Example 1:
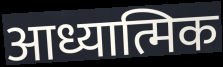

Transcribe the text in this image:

आध्यात्मिक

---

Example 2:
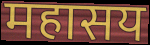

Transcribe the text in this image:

महासय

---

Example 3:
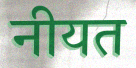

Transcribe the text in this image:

नीयत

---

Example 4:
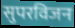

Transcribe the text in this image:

सुपरविजन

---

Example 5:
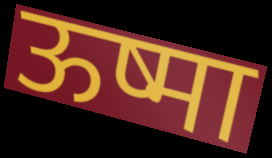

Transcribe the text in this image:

ऊष्मा